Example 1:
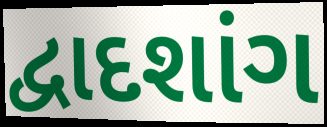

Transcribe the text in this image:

દ્વાદશાંગ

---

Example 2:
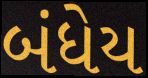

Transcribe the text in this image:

બંધેય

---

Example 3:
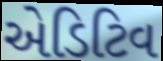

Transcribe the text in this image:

એડિટિવ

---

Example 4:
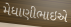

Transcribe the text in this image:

મેધાણીભાઇએ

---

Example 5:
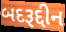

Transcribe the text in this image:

બદરૂદ્દીન